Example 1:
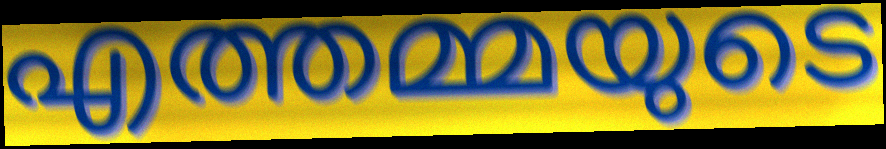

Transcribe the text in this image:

എത്തമ്മയുടെ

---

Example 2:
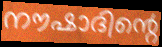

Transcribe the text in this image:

നൗഷാദിന്റെ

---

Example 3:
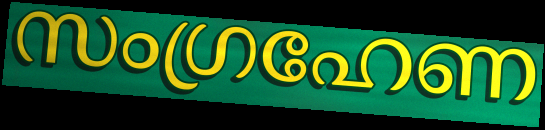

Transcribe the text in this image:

സംഗ്രഹേണ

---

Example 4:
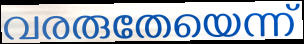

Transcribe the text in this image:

വരരുതേയെന്ന്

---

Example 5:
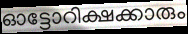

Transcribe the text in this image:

ഓട്ടോറിക്ഷക്കാരും